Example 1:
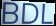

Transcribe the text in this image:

BDL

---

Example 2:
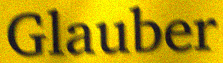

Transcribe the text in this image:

Glauber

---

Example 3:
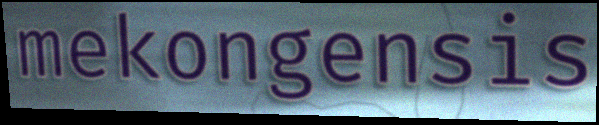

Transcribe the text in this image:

mekongensis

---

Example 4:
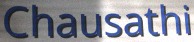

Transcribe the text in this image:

Chausathi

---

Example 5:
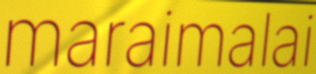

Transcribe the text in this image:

maraimalai